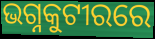
ଭଗ୍ନକୁଟୀରରେ